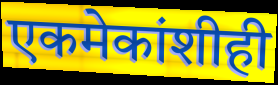
एकमेकांशीही